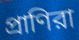
প্রাণিরা